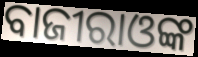
ବାଜୀରାଓଙ୍କ